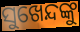
ସୁଖେନ୍ଦଙ୍କୁ